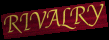
RIVALRY